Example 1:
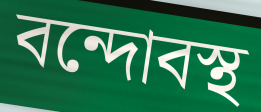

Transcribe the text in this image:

বন্দোবস্থ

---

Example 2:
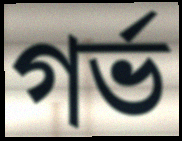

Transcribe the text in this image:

গর্ভ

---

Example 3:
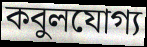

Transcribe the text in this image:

কবুলযোগ্য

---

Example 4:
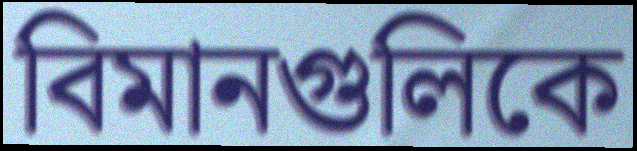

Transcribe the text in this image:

বিমানগুলিকে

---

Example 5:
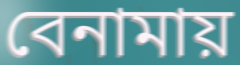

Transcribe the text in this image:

বেনামায়